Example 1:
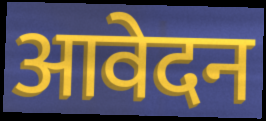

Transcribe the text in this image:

आवेदन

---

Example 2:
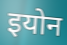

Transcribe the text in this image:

इयोन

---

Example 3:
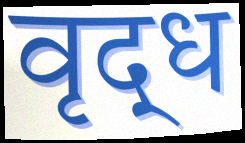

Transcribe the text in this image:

वृद्ध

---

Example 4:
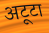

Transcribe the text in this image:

अटूटा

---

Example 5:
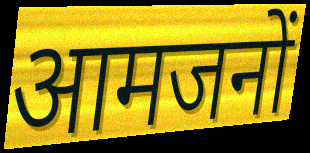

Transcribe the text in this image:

आमजनों